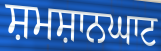
ਸ਼ਮਸ਼ਾਨਘਾਟ